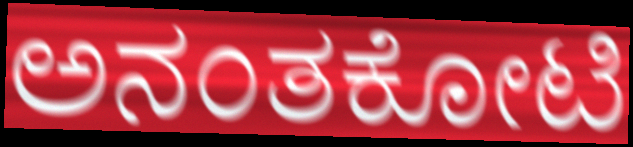
ಅನಂತಕೋಟಿ